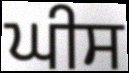
ਘੀਸ